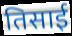
तिसाई